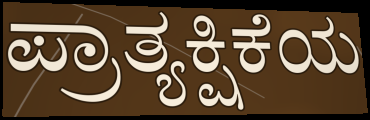
ಪ್ರಾತ್ಯಕ್ಷಿಕೆಯ